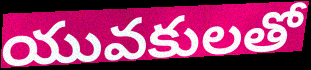
యువకులతో